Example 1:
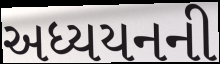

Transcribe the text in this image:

અધ્યયનની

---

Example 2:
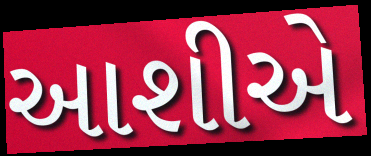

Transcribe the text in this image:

આશીએ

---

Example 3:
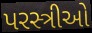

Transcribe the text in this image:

પરસ્ત્રીઓ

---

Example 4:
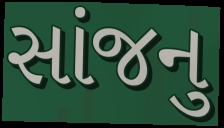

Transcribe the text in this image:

સાંજનુ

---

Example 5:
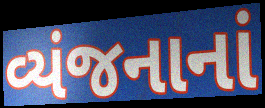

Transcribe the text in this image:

વ્યંજનાનાં